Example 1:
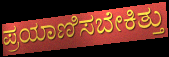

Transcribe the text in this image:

ಪ್ರಯಾಣಿಸಬೇಕಿತ್ತು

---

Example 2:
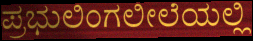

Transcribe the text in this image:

ಪ್ರಭುಲಿಂಗಲೀಲೆಯಲ್ಲಿ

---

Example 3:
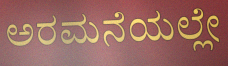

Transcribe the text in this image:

ಅರಮನೆಯಲ್ಲೇ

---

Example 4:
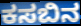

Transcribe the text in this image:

ಕಸಬಿನ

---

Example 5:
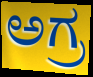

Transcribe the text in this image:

ಅಗ್ರ